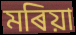
মৰিয়া